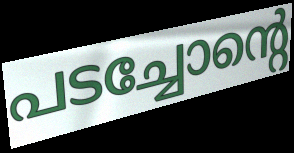
പടച്ചോന്റെ